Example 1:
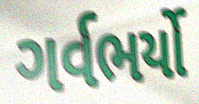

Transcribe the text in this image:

ગર્વભર્યો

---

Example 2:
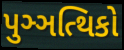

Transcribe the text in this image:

પુઞ્ઞત્થિકો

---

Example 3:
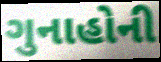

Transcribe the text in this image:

ગુનાહોની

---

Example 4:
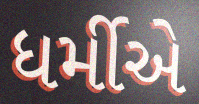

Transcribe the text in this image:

ધર્મીએ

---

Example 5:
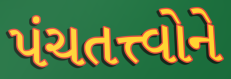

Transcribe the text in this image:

પંચતત્ત્વોને